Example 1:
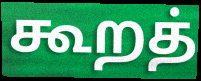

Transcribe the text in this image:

கூறத்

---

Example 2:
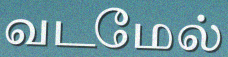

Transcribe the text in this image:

வடமேல்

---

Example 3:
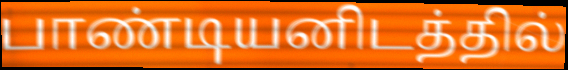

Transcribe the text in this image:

பாண்டியனிடத்தில்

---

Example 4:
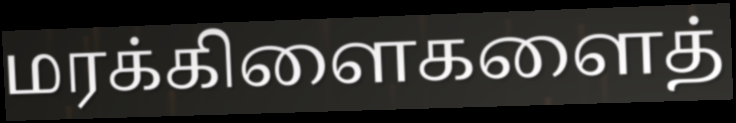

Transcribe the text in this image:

மரக்கிளைகளைத்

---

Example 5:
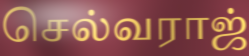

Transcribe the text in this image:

செல்வராஜ்